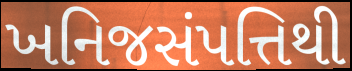
ખનિજસંપત્તિથી